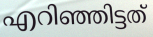
എറിഞ്ഞിട്ടത്